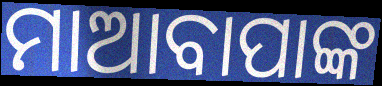
ମାଆବାପାଙ୍କ